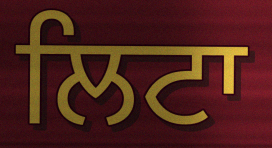
ਲਿਟਾ